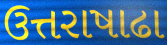
ઉત્તરાષાઢા